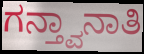
ಗನ್ತ್ವಾನಾತಿ